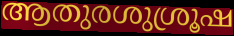
ആതുരശുശ്രൂഷ